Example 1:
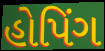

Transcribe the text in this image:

હોપિંગ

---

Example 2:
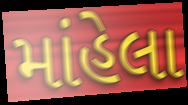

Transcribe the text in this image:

માંહેલા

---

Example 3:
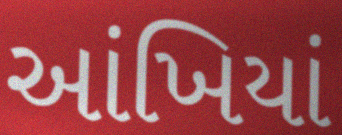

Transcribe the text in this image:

આંખિયાં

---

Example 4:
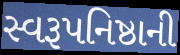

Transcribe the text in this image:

સ્વરૂપનિષ્ઠાની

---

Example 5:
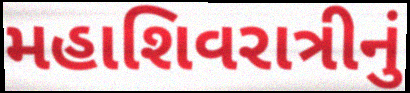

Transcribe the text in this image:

મહાશિવરાત્રીનું